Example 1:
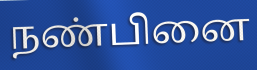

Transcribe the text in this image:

நண்பினை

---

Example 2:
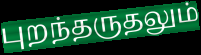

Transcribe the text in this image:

புறந்தருதலும்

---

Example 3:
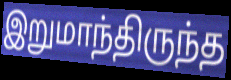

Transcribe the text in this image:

இறுமாந்திருந்த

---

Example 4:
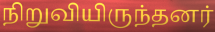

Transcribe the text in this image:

நிறுவியிருந்தனர்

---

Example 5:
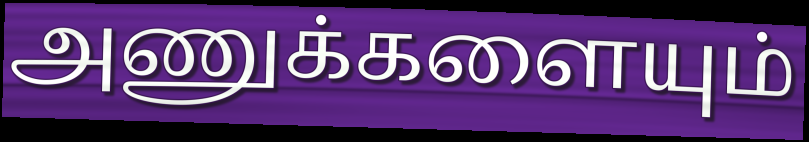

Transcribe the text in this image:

அணுக்களையும்